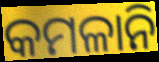
କମଳାନି